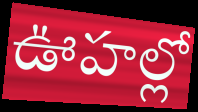
ఊహల్లో